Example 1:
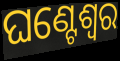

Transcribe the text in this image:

ଘଣ୍ଟେଶ୍ୱର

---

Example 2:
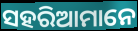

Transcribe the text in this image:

ସହରିଆମାନେ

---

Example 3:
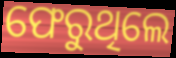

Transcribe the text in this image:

ଫେରୁଥିଲେ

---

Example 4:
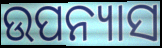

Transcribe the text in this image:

ଉପନ୍ୟାସ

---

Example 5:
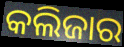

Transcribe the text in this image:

କଲିଜାର